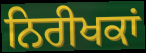
ਨਿਰੀਖਕਾਂ